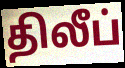
திலீப்